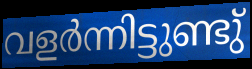
വളർന്നിട്ടുണ്ടു്